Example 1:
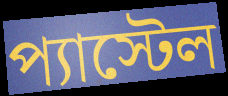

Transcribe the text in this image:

প্যাস্টেল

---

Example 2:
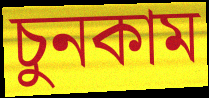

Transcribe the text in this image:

চুনকাম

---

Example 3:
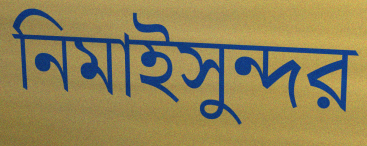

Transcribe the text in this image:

নিমাইসুন্দর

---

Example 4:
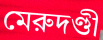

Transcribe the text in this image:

মেরুদণ্ডী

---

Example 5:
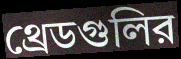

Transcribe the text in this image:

থ্রেডগুলির